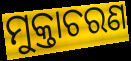
ମୁକ୍ତାଚରଣ